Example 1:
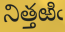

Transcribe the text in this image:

నిత్తఱిఁ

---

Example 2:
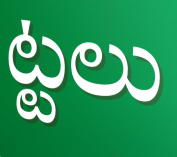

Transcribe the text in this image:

ట్టలు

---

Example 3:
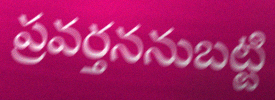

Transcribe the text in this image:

ప్రవర్తననుబట్టి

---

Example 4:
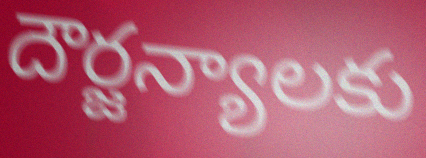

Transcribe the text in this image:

దౌర్జన్యాలకు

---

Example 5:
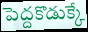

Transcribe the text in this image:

పెద్దకొడుక్కే